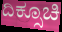
ದಿಕ್ಸೂಚಿ